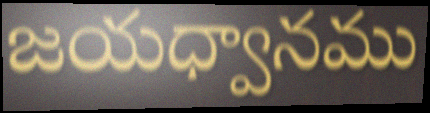
జయధ్వానము